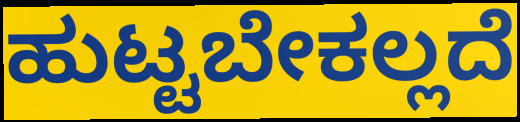
ಹುಟ್ಟಬೇಕಲ್ಲದೆ